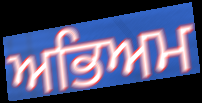
ਅਭਿਅਮ